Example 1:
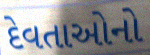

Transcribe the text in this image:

દેવતાઓનો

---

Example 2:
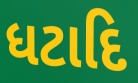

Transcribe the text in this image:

ધટાદિ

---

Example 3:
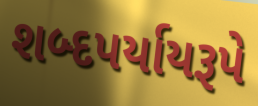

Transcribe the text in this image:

શબ્દપર્યાયરૂપે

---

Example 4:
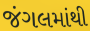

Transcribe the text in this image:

જંગલમાંથી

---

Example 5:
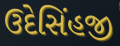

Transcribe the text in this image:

ઉદેસિંહજી